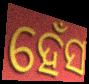
ହେଁସ